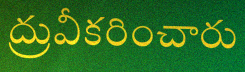
ద్రువీకరించారు